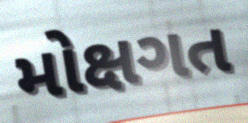
મોક્ષગત